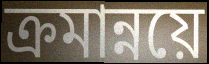
ক্রমান্নয়ে